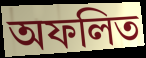
অফলিত